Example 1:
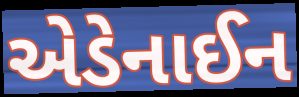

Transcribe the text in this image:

એડેનાઈન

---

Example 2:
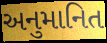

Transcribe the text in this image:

અનુમાનિત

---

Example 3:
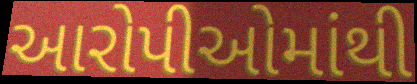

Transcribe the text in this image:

આરોપીઓમાંથી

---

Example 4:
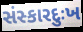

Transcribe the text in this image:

સંસ્કારદુઃખ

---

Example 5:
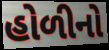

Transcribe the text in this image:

હોળીનો